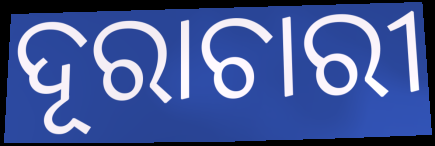
ଦୂରାଚାରୀ